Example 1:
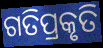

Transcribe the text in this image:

ଗତିପ୍ରକୃତି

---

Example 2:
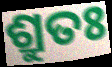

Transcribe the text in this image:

ଶ୍ରୁତଃ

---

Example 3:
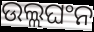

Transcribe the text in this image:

ଉଲ୍ଲଘଂନ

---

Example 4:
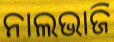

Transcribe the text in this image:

ନାଲଭାଜି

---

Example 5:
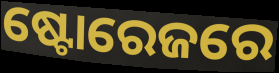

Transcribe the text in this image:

ଷ୍ଟୋରେଜରେ